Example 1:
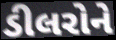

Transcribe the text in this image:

ડીલરોને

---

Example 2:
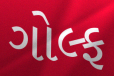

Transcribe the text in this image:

ગોલ્ફ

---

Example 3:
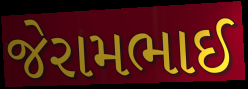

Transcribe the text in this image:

જેરામભાઈ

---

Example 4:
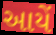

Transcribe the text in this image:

આયેં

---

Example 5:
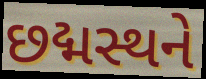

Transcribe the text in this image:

છદ્મસ્થને